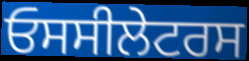
ਓਸਸੀਲੇਟਰਸ